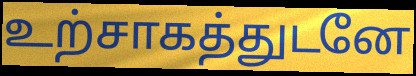
உற்சாகத்துடனே